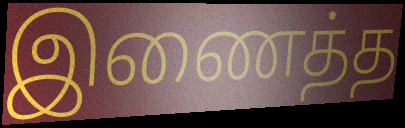
இணைத்த